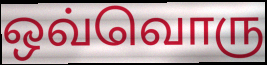
ஒவ்வொரு